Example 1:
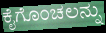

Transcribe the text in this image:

ಕೈಗೊಂಚಲನ್ನು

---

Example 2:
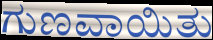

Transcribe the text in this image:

ಗುಣವಾಯಿತು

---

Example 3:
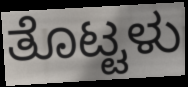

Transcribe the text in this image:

ತೊಟ್ಟಳು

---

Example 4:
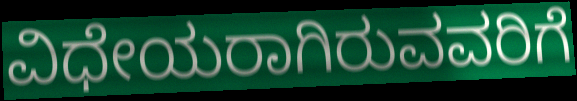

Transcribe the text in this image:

ವಿಧೇಯರಾಗಿರುವವರಿಗೆ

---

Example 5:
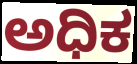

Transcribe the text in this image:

ಅಧಿಕ